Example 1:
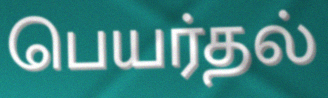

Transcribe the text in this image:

பெயர்தல்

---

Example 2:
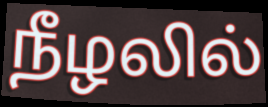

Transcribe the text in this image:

நீழலில்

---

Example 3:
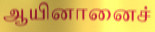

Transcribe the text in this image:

ஆயினானைச்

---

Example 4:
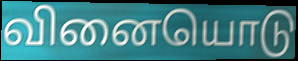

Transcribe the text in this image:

வினையொடு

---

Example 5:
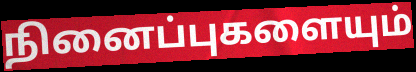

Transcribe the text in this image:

நினைப்புகளையும்